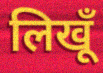
लिखूँ